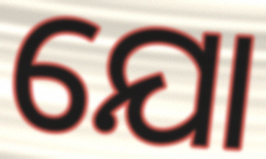
ଯୋ